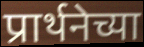
प्रार्थनेच्या